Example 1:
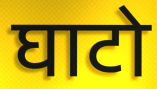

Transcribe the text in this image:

घाटो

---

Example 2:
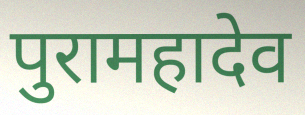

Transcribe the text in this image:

पुरामहादेव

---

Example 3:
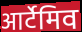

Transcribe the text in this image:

आर्टेमिव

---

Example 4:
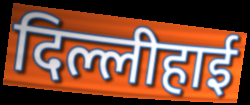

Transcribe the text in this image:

दिल्लीहाई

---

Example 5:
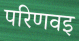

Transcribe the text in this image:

परिणवइ